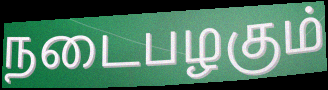
நடைபழகும்